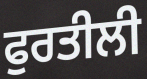
ਫੁਰਤੀਲੀ